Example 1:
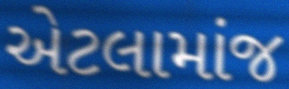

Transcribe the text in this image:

એટલામાંજ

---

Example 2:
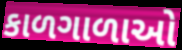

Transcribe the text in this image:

કાળગાળાઓ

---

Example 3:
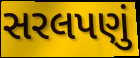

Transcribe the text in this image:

સરલપણું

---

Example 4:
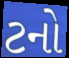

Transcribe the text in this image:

ટનો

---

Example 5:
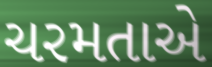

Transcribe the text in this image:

ચરમતાએ